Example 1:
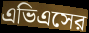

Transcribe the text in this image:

এভিএসের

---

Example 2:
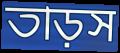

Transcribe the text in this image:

তাড়স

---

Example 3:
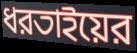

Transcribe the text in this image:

ধরতাইয়ের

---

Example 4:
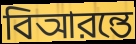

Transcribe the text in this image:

বিআরন্তে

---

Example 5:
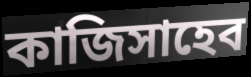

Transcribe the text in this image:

কাজিসাহেব